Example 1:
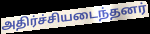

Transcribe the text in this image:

அதிர்ச்சியடைந்தனர்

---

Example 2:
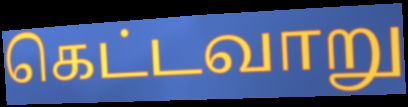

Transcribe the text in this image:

கெட்டவாறு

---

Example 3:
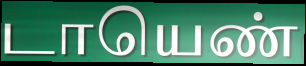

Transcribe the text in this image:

டாயெண்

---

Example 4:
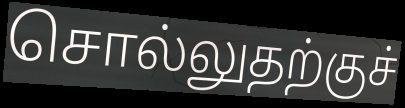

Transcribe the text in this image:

சொல்லுதற்குச்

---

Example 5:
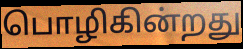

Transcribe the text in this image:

பொழிகின்றது